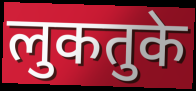
लुकतुके